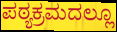
ಪಠ್ಯಕ್ರಮದಲ್ಲೂ